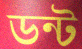
ডন্ট